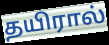
தயிரால்